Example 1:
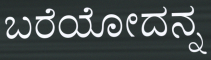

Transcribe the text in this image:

ಬರೆಯೋದನ್ನ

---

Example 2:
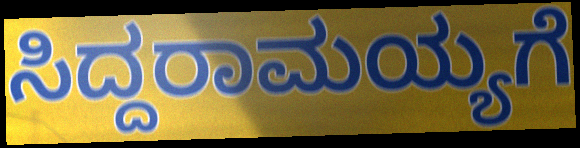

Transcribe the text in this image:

ಸಿದ್ದರಾಮಯ್ಯಗೆ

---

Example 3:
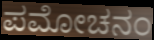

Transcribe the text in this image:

ಪಮೋಚನಂ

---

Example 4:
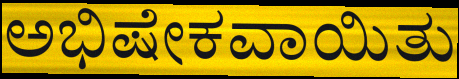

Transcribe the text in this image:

ಅಭಿಷೇಕವಾಯಿತು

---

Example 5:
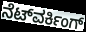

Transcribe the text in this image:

ನೆಟ್‌ವರ್ಕಿಂಗ್